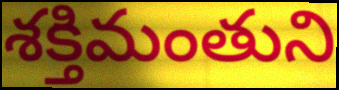
శక్తిమంతుని